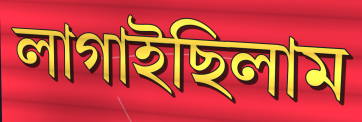
লাগাইছিলাম